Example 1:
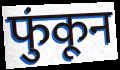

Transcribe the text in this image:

फुंकून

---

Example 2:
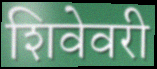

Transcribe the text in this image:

शिवेवरी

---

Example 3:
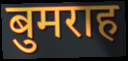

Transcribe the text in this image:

बुमराह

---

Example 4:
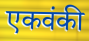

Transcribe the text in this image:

एकवंकी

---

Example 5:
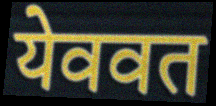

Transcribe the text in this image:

येववत